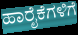
ಹಾರೈಕೆಗಳಿಗೆ